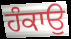
ਹੰਕਾਉ